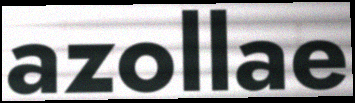
azollae